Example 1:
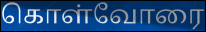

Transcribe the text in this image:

கொள்வோரை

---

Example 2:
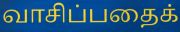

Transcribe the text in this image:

வாசிப்பதைக்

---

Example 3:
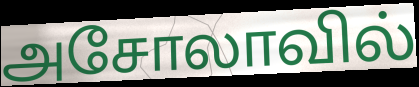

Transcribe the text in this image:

அசோலாவில்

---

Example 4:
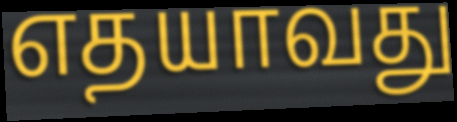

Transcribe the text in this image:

எதயாவது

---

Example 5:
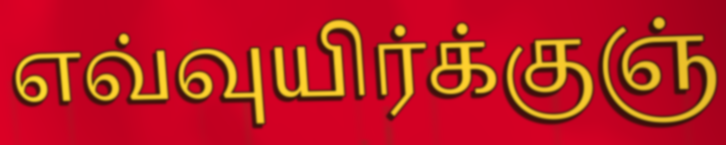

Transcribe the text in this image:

எவ்வுயிர்க்குஞ்